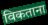
विकताना